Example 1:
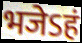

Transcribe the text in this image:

भजेऽहं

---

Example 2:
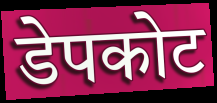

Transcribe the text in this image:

डेपकोट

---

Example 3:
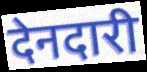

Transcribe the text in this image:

देनदारी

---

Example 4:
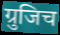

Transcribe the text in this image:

ग्रुजिच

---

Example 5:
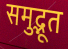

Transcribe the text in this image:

समुद्भूत